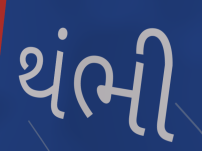
થંભી